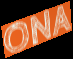
ONA